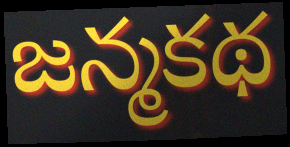
జన్మకథ